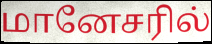
மானேசரில்